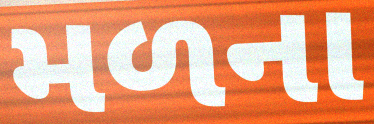
મળના